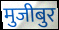
मुजीबुर